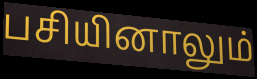
பசியினாலும்